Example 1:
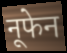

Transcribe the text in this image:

नूफेन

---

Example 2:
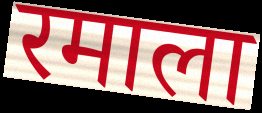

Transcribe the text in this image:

रमाला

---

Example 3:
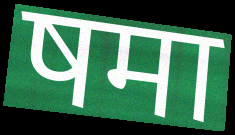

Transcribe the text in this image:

षमा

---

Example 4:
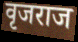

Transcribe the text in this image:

वृजराज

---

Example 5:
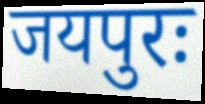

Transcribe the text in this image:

जयपुरः